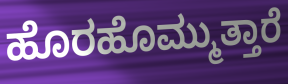
ಹೊರಹೊಮ್ಮುತ್ತಾರೆ